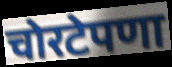
चोरटेपणा